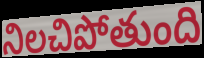
నిలచిపోతుంది